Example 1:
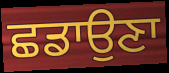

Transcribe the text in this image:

ਛਡਾਉਣਾ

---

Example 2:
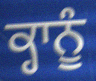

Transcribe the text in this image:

ਕ੍ਹਾਨੂੰ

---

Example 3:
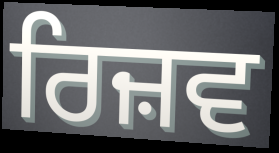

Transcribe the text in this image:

ਰਿਜ਼ਵ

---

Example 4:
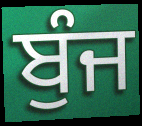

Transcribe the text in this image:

ਬੁੰਜ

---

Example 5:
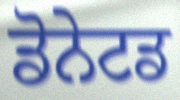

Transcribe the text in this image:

ਡੋਨੇਟਡ